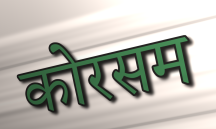
कोरसम